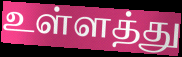
உள்ளத்து